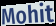
Mohit